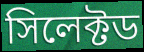
সিলেক্টড